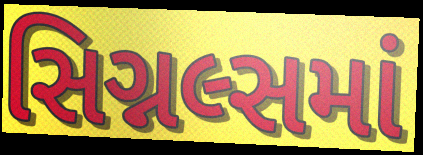
સિગ્નલ્સમાં